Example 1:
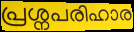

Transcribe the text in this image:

പ്രശ്നപരിഹാര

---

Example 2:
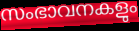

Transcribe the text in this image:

സംഭാവനകളും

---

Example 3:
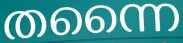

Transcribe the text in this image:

തന്നൈ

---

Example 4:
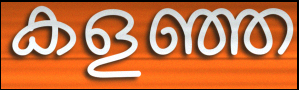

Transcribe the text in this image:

കളഞ്ഞ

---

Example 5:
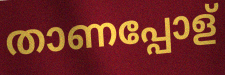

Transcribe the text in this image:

താണപ്പോള്